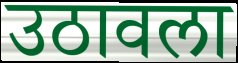
उठावला